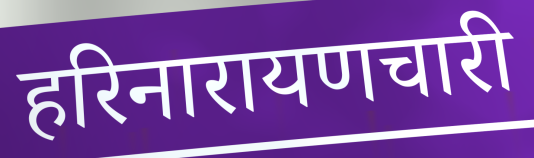
हरिनारायणचारी